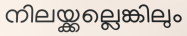
നിലയ്ക്കല്ലെങ്കിലും